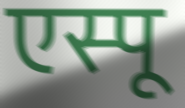
एस्पू